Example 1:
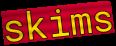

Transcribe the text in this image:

skims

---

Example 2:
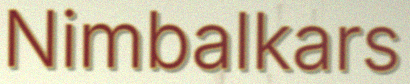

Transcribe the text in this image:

Nimbalkars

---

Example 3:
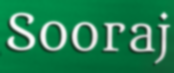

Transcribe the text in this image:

Sooraj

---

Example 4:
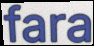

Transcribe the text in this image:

fara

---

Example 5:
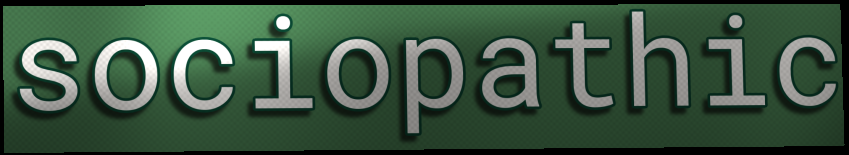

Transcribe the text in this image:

sociopathic